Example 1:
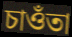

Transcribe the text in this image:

চাওঁতা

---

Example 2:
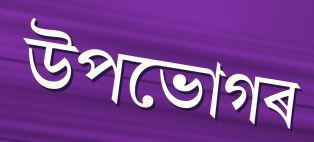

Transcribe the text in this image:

উপভোগৰ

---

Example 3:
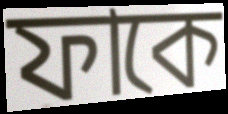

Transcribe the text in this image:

ফাকে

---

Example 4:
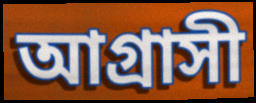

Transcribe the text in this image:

আগ্ৰাসী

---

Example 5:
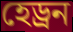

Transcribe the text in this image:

হেড্ৰন